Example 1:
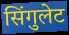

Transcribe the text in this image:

सिंगुलेट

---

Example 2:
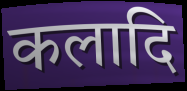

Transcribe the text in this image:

कलादि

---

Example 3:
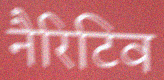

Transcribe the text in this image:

नैरिटिव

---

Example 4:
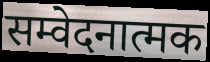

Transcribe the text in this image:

सम्वेदनात्मक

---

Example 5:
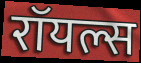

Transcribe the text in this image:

रॉयल्स